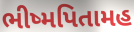
ભીષ્મપિતામહ